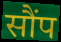
सौंप